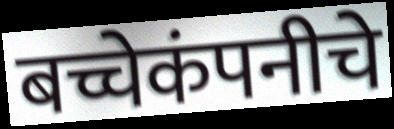
बच्चेकंपनीचे